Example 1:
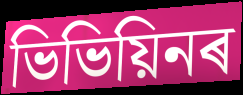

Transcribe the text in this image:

ভিভিয়িনৰ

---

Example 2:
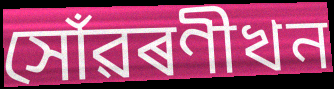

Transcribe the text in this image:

সোঁৱৰণীখন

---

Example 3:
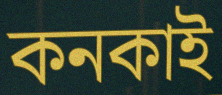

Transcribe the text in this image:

কনকাই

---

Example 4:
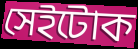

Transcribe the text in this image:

সেইটোক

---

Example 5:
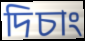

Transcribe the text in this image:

দিচাং